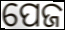
ପେଜ